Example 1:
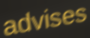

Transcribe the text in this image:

advises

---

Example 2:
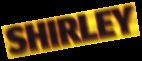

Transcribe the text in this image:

SHIRLEY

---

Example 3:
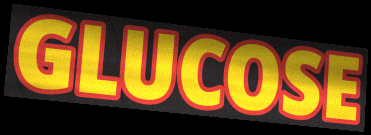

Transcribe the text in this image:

GLUCOSE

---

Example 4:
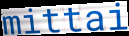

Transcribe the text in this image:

mittai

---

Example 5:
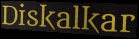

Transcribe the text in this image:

Diskalkar